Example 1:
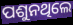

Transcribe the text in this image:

ପଶୁନଥିଲେ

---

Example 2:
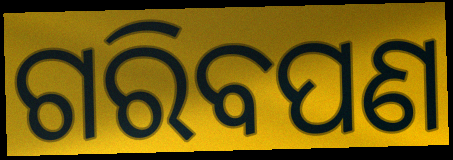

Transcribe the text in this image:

ଗରିବପଣ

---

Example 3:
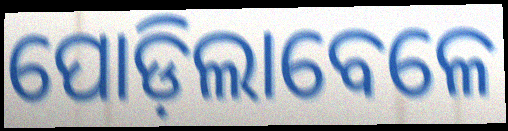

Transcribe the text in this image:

ପୋଡ଼ିଲାବେଳେ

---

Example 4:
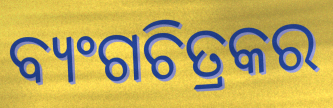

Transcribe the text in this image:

ବ୍ୟଂଗଚିତ୍ରକର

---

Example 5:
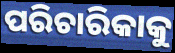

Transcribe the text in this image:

ପରିଚାରିକାକୁ